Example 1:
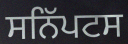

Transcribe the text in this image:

ਸਨਿੱਪਟਸ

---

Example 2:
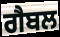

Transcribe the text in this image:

ਗੈਬਲ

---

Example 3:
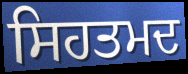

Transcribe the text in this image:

ਸਿਹਤਮਦ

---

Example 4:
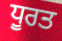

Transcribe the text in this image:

ਧੂਰਤ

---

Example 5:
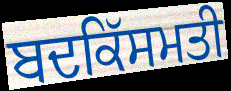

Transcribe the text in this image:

ਬਦਕਿੱਸਮਤੀ